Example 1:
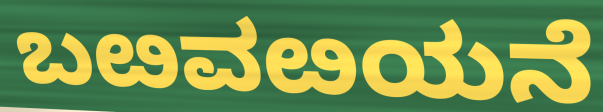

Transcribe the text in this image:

ಬೞವೞಯನೆ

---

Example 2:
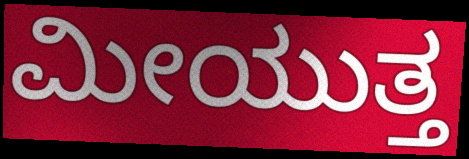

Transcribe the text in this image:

ಮೀಯುತ್ತ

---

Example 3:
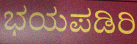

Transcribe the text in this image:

ಭಯಪಡಿರಿ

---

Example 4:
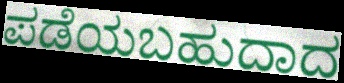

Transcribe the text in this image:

ಪಡೆಯಬಹುದಾದ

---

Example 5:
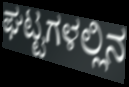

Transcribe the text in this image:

ಘಟ್ಟಗಳಲ್ಲಿನ